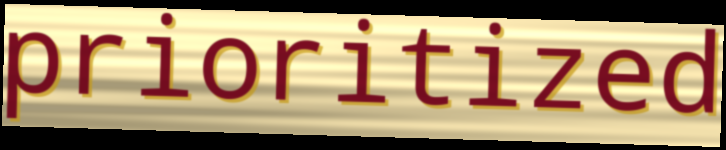
prioritized